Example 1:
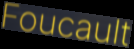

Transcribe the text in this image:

Foucault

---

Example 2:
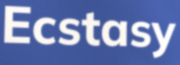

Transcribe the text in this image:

Ecstasy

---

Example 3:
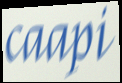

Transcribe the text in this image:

caapi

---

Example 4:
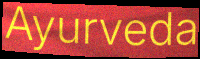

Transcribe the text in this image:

Ayurveda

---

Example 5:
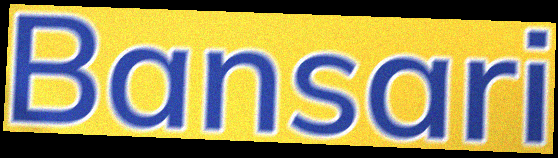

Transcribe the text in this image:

Bansari